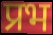
प्रभ